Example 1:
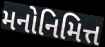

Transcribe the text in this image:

મનોનિમિત્ત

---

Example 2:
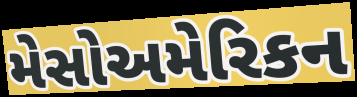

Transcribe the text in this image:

મેસોઅમેરિકન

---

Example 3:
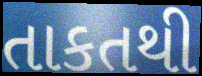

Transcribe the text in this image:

તાકતથી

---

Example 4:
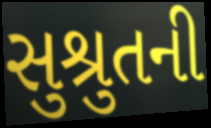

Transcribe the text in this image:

સુશ્રુતની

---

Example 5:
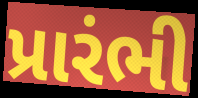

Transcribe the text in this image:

પ્રારંભી